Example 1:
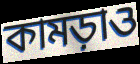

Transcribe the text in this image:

কামড়াও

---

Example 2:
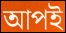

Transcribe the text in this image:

আপই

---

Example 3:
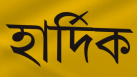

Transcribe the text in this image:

হার্দিক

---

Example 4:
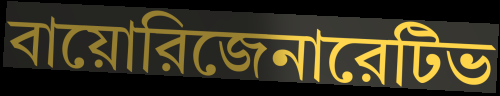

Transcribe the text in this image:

বায়োরিজেনারেটিভ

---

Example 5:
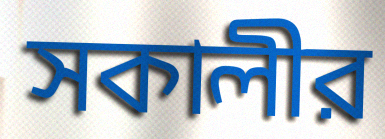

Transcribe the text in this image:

সকালীর